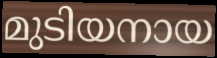
മുടിയനായ